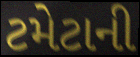
ટમેટાની